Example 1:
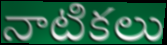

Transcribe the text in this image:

నాటికలు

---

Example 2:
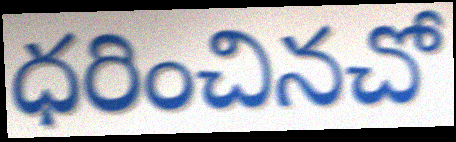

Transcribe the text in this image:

ధరించినచో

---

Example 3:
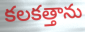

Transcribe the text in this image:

కలకత్తాను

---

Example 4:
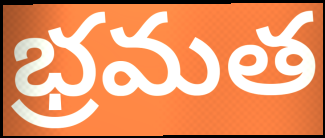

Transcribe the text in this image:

భ్రమత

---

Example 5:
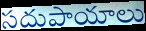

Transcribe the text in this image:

సదుపాయాలు